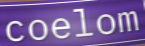
coelom